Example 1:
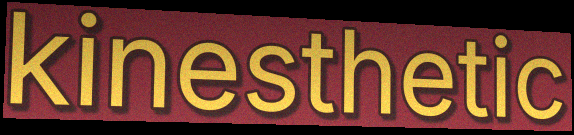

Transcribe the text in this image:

kinesthetic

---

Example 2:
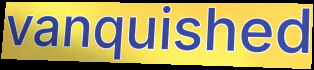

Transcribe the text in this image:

vanquished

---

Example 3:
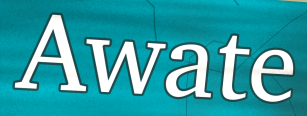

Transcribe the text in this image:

Awate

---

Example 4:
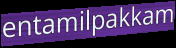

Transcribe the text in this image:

entamilpakkam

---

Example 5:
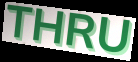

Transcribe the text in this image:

THRU